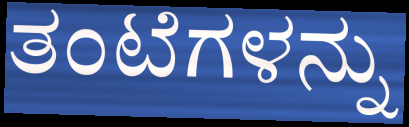
ತಂಟೆಗಳನ್ನು